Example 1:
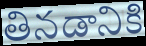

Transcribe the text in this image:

తినడానికి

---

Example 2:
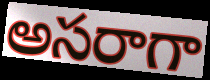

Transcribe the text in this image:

అసరాగా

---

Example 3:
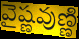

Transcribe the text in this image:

వైష్ణవుణ్ణి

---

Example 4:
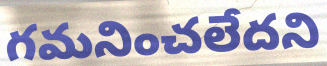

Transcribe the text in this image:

గమనించలేదని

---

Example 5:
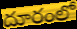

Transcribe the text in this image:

దూరంలో